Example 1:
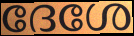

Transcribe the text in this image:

ദേശേ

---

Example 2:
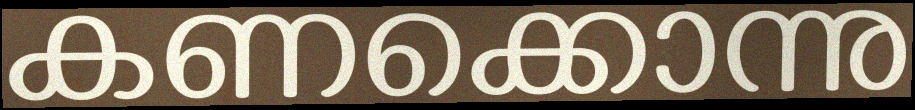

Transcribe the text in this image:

കണക്കൊന്നു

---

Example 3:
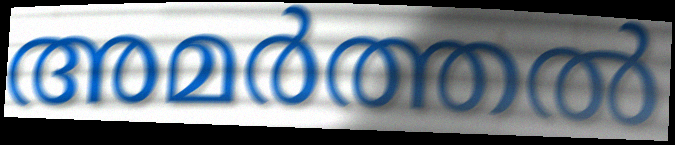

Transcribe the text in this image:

അമർത്തൽ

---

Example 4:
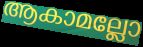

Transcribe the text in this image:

ആകാമല്ലോ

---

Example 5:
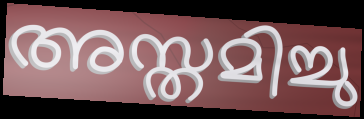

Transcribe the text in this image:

അസ്തമിച്ചു